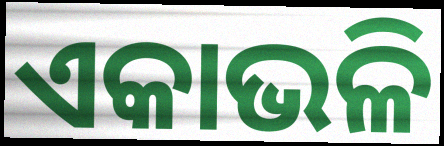
ଏକାଭଳି